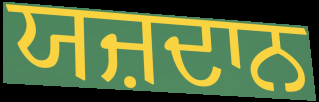
ਯਜ਼ਦਾਨ